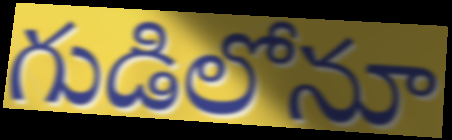
గుడిలోనూ